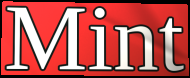
Mint